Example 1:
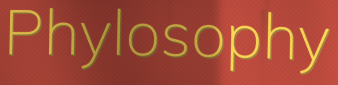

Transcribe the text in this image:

Phylosophy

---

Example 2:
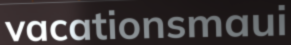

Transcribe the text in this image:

vacationsmaui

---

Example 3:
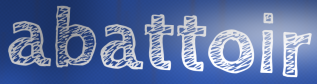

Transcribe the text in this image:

abattoir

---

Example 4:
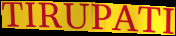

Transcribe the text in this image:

TIRUPATI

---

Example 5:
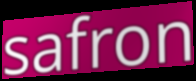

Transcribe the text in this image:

safron